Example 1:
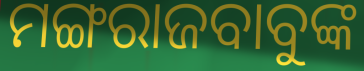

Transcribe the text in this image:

ମଙ୍ଗରାଜବାବୁଙ୍କ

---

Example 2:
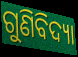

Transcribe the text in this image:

ଗୁଣିବିଦ୍ୟା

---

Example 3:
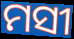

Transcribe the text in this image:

ମସୀ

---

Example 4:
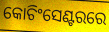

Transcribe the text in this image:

କୋଚିଂସେଣ୍ଟରରେ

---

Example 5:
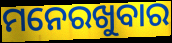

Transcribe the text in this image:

ମନେରଖୁବାର